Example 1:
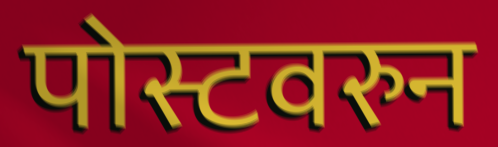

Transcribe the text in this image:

पोस्टवरुन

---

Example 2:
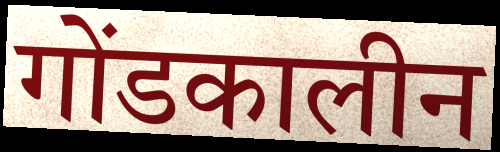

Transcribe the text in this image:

गोंडकालीन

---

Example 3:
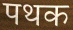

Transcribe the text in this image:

पथक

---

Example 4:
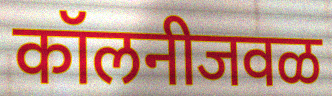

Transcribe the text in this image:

कॉलनीजवळ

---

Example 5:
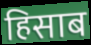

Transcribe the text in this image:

हिसाब